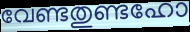
വേണ്ടതുണ്ടഹോ